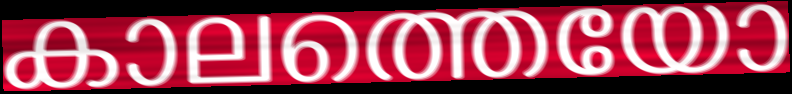
കാലത്തെയോ